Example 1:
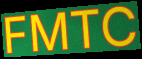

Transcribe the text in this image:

FMTC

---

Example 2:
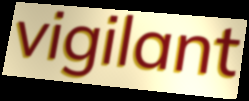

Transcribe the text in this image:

vigilant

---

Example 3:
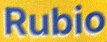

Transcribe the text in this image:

Rubio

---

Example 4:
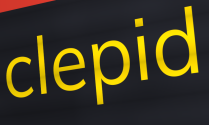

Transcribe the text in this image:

clepid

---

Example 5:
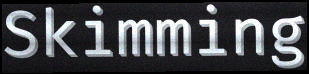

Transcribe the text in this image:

Skimming